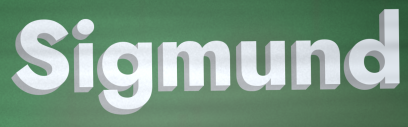
Sigmund